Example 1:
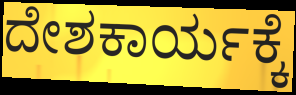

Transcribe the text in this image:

ದೇಶಕಾರ್ಯಕ್ಕೆ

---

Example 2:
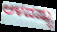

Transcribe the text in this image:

ಆಳದಷ್ಟು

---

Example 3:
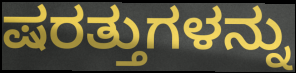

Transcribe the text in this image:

ಷರತ್ತುಗಳನ್ನು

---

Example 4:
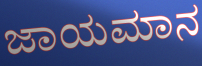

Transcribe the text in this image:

ಜಾಯಮಾನ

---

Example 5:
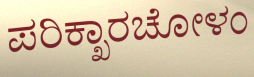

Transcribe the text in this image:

ಪರಿಕ್ಖಾರಚೋಳಂ